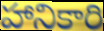
హానికారి